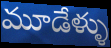
మూడేళ్ళు